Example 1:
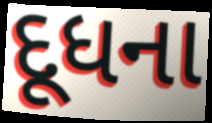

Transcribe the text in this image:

દૂધના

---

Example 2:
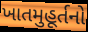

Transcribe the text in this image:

ખાતમુહૂર્તનો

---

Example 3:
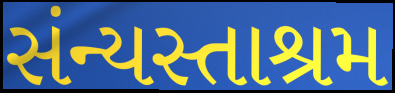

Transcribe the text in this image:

સંન્યસ્તાશ્રમ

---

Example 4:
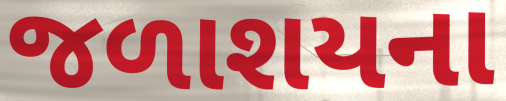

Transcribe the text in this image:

જળાશયના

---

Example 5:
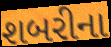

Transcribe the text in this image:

શબરીના